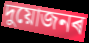
দুয়োজনৰ